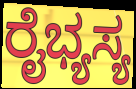
ರೈಭ್ಯಸ್ಯ